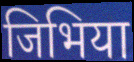
जिभिया